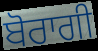
ਬੋਰਾਗੀ